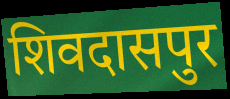
शिवदासपुर